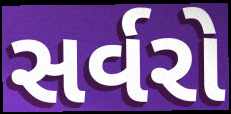
સર્વરો